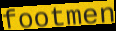
footmen